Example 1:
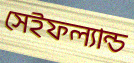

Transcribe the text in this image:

সেইফল্যান্ড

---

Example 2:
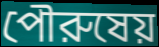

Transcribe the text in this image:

পৌরুষেয়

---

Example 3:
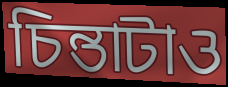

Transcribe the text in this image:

চিন্তাটাও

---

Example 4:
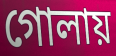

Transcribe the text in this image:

গোলায়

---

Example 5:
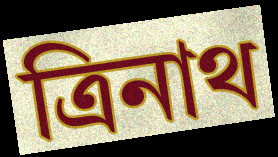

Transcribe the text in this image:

ত্রিনাথ